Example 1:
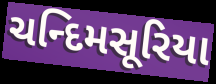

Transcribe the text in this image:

ચન્દિમસૂરિયા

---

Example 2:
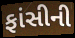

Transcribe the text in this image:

ફાંસીની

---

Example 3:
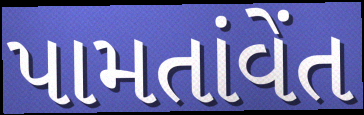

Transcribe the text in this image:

પામતાંવેંત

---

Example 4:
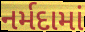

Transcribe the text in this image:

નર્મદામાં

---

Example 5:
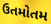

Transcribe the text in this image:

ઉતમોતમ